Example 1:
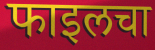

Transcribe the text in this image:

फाइलचा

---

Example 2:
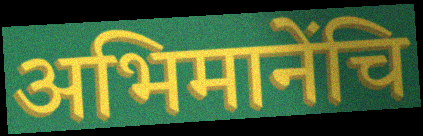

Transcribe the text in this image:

अभिमानेंचि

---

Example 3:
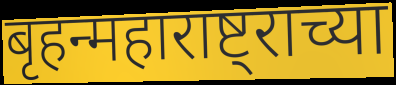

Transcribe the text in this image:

बृहन्महाराष्ट्राच्या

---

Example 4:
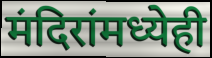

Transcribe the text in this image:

मंदिरांमध्येही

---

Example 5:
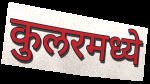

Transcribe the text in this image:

कुलरमध्ये